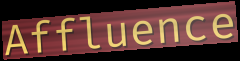
Affluence